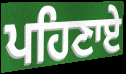
ਪਹਿਣਾਏ